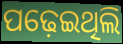
ପଢ଼େଇଥିଲି